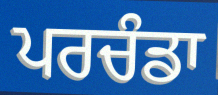
ਪਰਚੰਡਾ